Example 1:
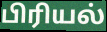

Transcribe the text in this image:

பிரியல்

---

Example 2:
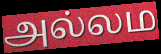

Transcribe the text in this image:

அல்லம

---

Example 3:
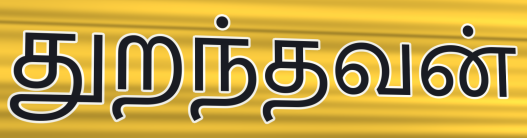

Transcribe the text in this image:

துறந்தவன்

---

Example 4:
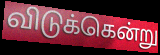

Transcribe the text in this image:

விடுக்கென்று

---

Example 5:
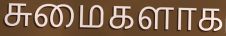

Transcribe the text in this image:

சுமைகளாக